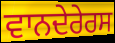
ਵਾਨਦੇਰੇਰਸ